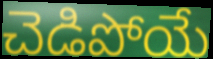
చెడిపోయే